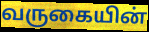
வருகையின்